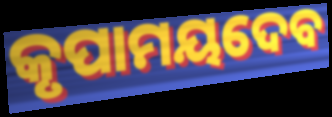
କୃପାମୟଦେବ